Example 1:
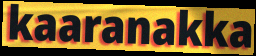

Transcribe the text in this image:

kaaranakka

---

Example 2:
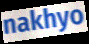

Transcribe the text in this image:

nakhyo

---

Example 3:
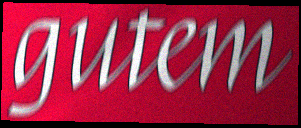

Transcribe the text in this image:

gutem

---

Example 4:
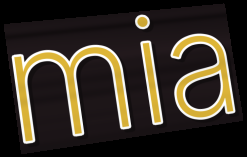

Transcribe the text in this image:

mia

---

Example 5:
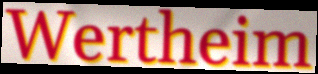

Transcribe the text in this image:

Wertheim